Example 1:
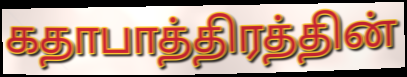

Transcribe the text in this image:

கதாபாத்திரத்தின்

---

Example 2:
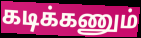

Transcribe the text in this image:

கடிக்கணும்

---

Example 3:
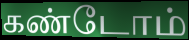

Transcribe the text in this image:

கண்டோம்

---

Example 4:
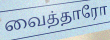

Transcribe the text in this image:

வைத்தாரோ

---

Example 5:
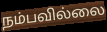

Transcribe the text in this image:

நம்பவில்லை